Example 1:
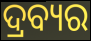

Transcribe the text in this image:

ଦ୍ରବ୍ୟର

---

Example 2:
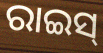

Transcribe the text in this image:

ରାଇସ୍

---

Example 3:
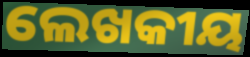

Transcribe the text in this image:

ଲେଖକୀୟ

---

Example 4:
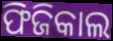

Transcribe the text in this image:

ଫିଜିକାଲ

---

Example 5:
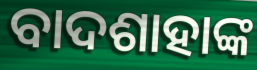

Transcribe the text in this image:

ବାଦଶାହାଙ୍କ